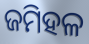
ଜମିହଳ